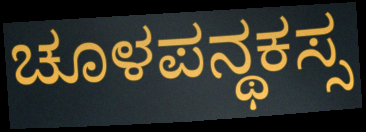
ಚೂಳಪನ್ಥಕಸ್ಸ